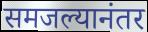
समजल्यानंतर